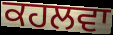
ਕਹਲਵਾ